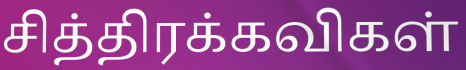
சித்திரக்கவிகள்